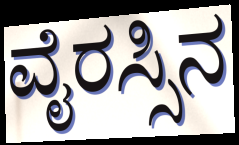
ವೈರಸ್ಸಿನ